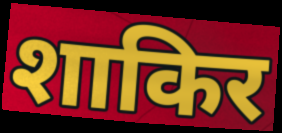
शाकिर